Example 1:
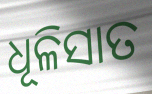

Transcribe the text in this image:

ଧୂଳିସାତ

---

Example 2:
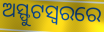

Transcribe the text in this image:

ଅସ୍ଫୁଟସ୍ୱରରେ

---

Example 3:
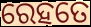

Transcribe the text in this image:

ରେହତେ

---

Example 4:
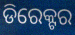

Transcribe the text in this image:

ଡିରେକ୍ଟର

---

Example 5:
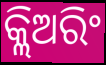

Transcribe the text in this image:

କ୍ଲିଅରିଂ